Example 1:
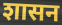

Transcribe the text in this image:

शासन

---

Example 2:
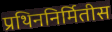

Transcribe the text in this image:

प्रथिननिर्मितीस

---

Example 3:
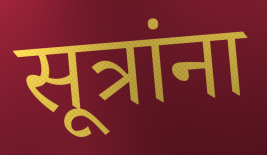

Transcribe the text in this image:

सूत्रांना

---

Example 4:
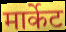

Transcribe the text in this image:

मार्केट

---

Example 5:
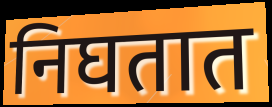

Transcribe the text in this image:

निघतात